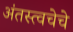
अंतस्त्वचेचे